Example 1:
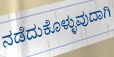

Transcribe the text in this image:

ನಡೆದುಕೊಳ್ಳುವುದಾಗಿ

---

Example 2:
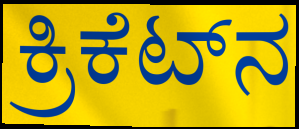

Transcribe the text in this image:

ಕ್ರಿಕೆಟ್‌ನ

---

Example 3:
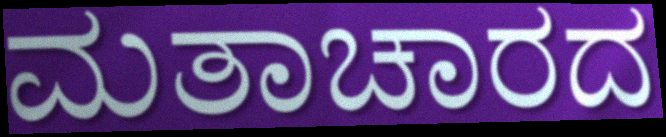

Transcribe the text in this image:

ಮತಾಚಾರದ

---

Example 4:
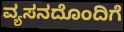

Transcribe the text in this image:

ವ್ಯಸನದೊಂದಿಗೆ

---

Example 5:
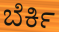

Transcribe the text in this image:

ಬೆರ್ಕಿ